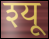
श्यू